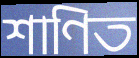
শাণিত